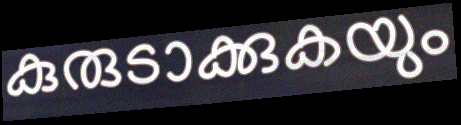
കുരുടാക്കുകയും